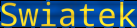
Swiatek